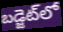
బడ్జెట్‌లో